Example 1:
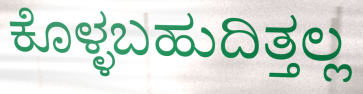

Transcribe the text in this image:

ಕೊಳ್ಳಬಹುದಿತ್ತಲ್ಲ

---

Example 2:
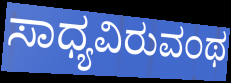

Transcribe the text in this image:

ಸಾಧ್ಯವಿರುವಂಥ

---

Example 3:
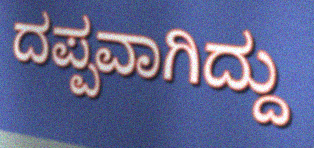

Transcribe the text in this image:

ದಪ್ಪವಾಗಿದ್ದು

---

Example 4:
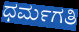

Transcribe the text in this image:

ಧರ್ಮಗತಿ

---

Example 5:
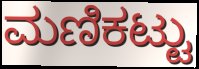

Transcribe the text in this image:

ಮಣಿಕಟ್ಟು